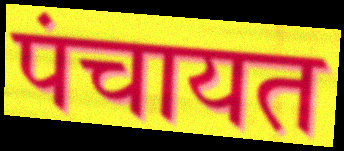
पंचायत